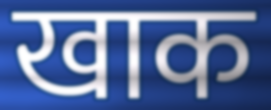
खाक